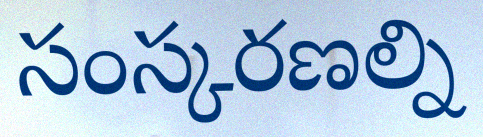
సంస్కరణల్ని